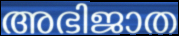
അഭിജാത